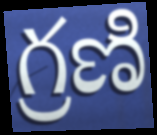
గ్రణి